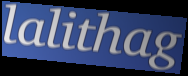
lalithag